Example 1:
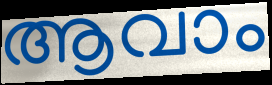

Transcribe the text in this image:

ആവാം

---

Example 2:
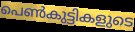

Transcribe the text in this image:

പെൺകുട്ടികളുടെ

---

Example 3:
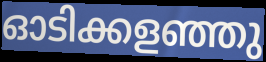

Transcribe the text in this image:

ഓടിക്കളഞ്ഞു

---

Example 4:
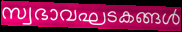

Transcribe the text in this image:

സ്വഭാവഘടകങ്ങൾ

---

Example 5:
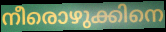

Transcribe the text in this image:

നീരൊഴുക്കിനെ